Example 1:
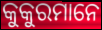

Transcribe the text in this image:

କୁକୁରମାନେ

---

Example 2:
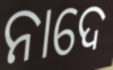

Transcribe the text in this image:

ନାଦେ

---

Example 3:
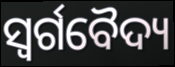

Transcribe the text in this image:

ସ୍ୱର୍ଗବୈଦ୍ୟ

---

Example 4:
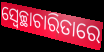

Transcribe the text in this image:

ସ୍ୱେଚ୍ଛାଚାରିତାରେ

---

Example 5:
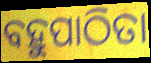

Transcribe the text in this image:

ବହୁପାଠିତା